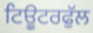
ਟਿਊਟਰਫੁੱਲ